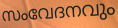
സംവേദനവും